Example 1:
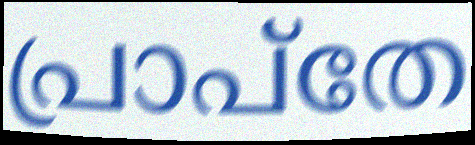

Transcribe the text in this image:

പ്രാപ്തേ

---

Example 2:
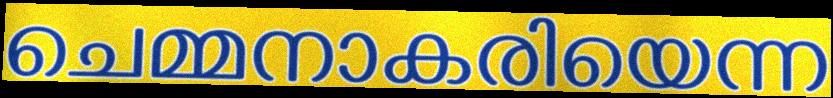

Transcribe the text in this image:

ചെമ്മനാകരിയെന്ന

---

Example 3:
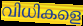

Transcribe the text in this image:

വിധികളെ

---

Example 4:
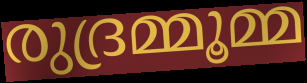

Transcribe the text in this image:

രുദ്രമ്മൂമ്മ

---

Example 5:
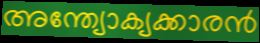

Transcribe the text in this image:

അന്ത്യോക്യക്കാരൻ